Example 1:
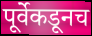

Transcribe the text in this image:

पूर्वेकडूनच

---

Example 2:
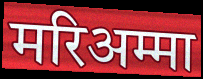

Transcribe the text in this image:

मरिअम्मा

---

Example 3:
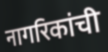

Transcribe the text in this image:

नागरिकांची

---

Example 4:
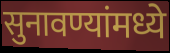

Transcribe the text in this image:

सुनावण्यांमध्ये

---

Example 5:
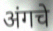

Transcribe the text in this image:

अंगचे